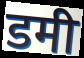
डमी